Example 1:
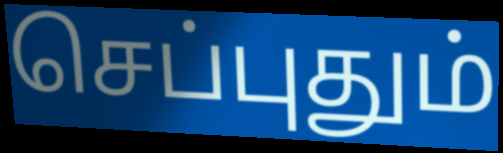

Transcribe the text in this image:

செப்புதும்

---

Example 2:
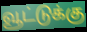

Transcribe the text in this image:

வூட்டுக்கு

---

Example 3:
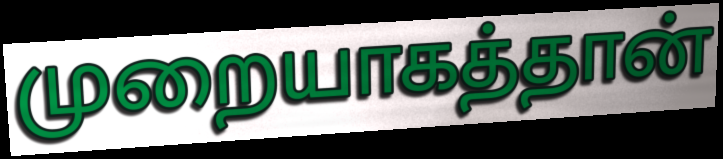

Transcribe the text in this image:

முறையாகத்தான்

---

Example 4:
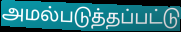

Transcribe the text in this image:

அமல்படுத்தப்பட்டு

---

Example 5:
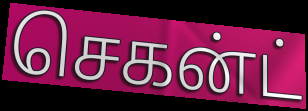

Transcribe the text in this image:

செகன்ட்